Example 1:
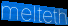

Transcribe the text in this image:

melteth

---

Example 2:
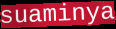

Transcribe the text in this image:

suaminya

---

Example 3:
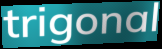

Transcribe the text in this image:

trigonal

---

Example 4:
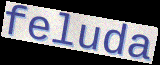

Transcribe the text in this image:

feluda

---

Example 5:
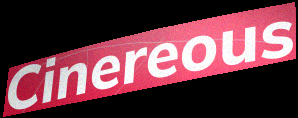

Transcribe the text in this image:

Cinereous